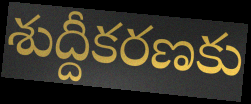
శుద్దీకరణకు